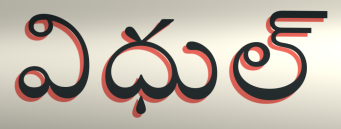
విధుల్